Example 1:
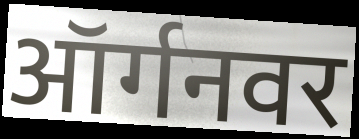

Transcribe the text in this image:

ऑर्गनवर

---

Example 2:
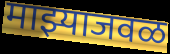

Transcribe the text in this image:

माझ्याजवळ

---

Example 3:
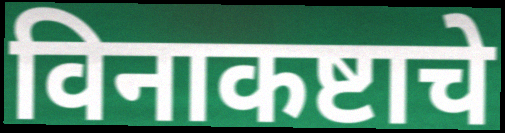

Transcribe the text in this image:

विनाकष्टाचे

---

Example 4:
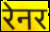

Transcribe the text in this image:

रेनर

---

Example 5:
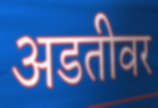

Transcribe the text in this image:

अडतीवर